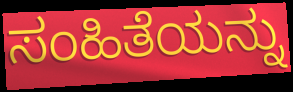
ಸಂಹಿತೆಯನ್ನು